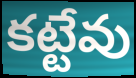
కట్టేవు